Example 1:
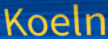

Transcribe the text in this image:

Koeln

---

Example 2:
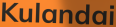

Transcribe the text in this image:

Kulandai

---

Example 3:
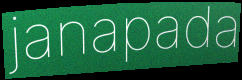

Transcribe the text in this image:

janapada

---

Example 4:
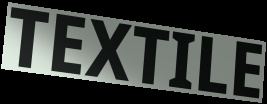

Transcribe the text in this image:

TEXTILE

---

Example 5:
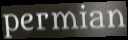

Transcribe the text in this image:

permian